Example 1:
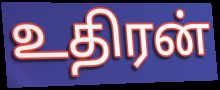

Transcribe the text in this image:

உதிரன்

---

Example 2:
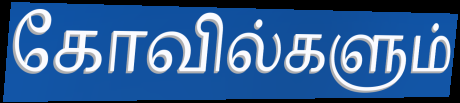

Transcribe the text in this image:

கோவில்களும்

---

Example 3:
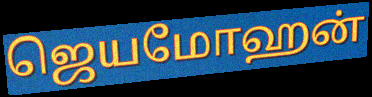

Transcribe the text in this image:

ஜெயமோஹன்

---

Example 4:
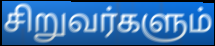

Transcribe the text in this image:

சிறுவர்களும்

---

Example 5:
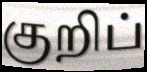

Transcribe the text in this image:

குறிப்